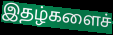
இதழ்களைச்